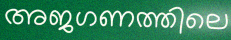
അജഗണത്തിലെ